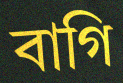
বাগি